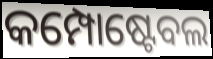
କମ୍ପୋଷ୍ଟେବଲ